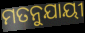
ମତନୁଯାୟୀ